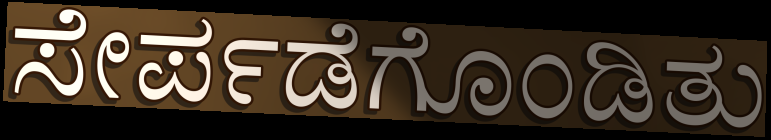
ಸೇರ್ಪಡೆಗೊಂಡಿತು